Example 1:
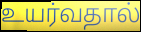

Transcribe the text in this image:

உயர்வதால்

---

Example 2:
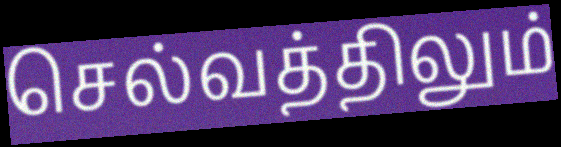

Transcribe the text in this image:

செல்வத்திலும்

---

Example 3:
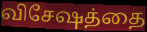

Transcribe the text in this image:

விசேஷத்தை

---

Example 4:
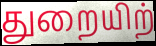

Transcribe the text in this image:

துறையிற்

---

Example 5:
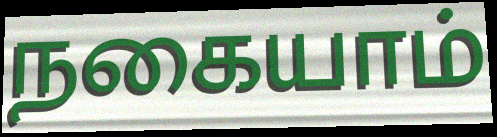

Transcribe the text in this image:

நகையாம்